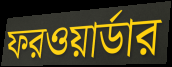
ফরওয়ার্ডার